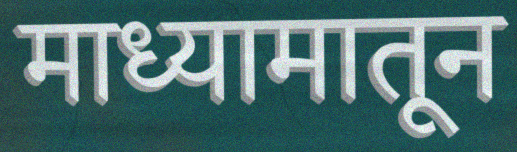
माध्यामातून